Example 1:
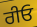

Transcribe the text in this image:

ਰੀਓ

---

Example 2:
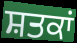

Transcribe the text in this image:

ਸ਼ਤਕਾਂ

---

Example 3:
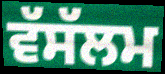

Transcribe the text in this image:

ਵੱਸੱਲਮ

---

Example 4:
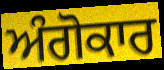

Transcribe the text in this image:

ਅੰਗੋਕਾਰ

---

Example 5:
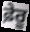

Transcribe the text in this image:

ਫ਼ੇਰੂ